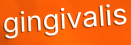
gingivalis